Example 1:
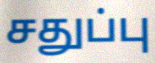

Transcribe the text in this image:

சதுப்பு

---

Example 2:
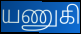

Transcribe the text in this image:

யணுகி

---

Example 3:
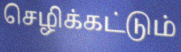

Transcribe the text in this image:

செழிக்கட்டும்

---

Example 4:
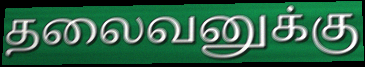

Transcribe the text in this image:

தலைவனுக்கு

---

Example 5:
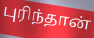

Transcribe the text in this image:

புரிந்தான்